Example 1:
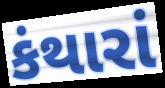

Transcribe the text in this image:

કંથારાં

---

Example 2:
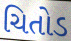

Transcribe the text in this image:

ચિતોડ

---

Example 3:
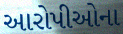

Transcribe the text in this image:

આરોપીઓના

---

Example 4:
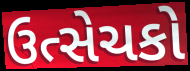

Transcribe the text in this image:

ઉત્સેચકો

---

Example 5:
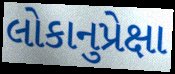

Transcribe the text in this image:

લોકાનુપ્રેક્ષા